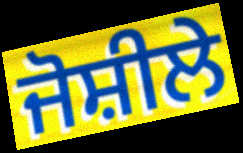
ਜੋਸ਼ੀਲੇ